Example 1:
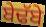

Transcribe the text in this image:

ਬੇਢੱਬੇ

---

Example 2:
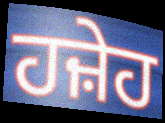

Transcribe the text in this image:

ਹਜ਼ੇਹ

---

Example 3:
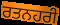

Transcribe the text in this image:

ਰਤਨਹਰੀ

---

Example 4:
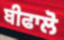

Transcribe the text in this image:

ਬੀਫਾਲੋ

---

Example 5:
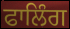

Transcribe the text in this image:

ਫਾਲਿੰਗ